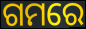
ଗମରେ